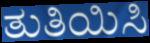
ತುತಿಯಿಸಿ